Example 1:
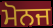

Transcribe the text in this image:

ਮੋਨਜ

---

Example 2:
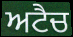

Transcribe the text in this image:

ਅਟੈਚ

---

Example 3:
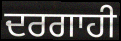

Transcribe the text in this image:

ਦਰਗਾਹੀ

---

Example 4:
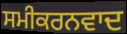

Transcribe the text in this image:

ਸਮੀਕਰਨਵਾਦ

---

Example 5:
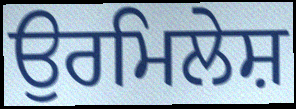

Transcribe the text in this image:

ਉਰਮਿਲੇਸ਼